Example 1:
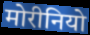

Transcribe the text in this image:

मोरीनियो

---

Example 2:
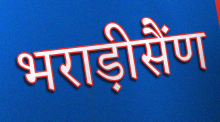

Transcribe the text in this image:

भराड़ीसैंण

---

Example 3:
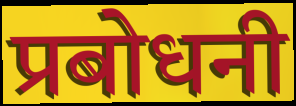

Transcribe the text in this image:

प्रबोधनी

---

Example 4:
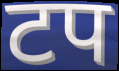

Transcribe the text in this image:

टप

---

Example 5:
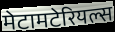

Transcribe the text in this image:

मेटामटेरियल्स